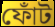
ফোঁট